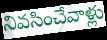
నివసించేవాళ్లు